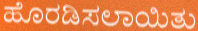
ಹೊರಡಿಸಲಾಯಿತು